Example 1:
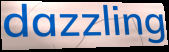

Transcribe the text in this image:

dazzling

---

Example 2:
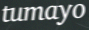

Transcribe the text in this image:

tumayo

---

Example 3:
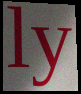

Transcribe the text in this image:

ly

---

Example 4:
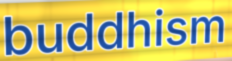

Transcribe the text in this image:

buddhism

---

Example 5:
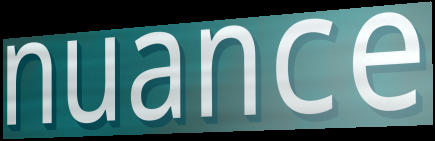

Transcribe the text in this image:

nuance